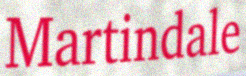
Martindale